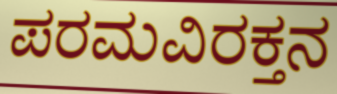
ಪರಮವಿರಕ್ತನ